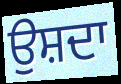
ਉਸ਼ਦਾ